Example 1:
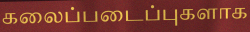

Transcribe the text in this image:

கலைப்படைப்புகளாக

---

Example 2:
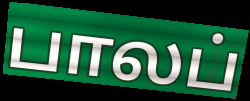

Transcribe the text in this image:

பாலப்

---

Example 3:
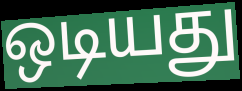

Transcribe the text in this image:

ஒடியது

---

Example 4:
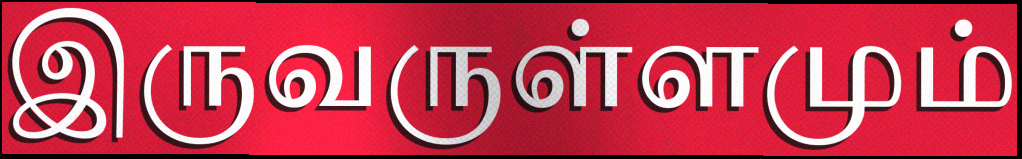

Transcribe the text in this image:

இருவருள்ளமும்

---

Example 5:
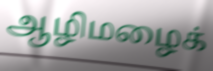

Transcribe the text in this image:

ஆழிமழைக்